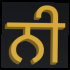
ਨੀ